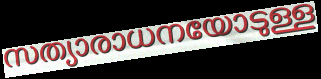
സത്യാരാധനയോടുള്ള